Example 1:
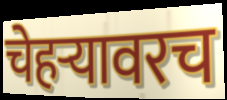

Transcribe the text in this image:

चेहर्‍यावरच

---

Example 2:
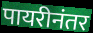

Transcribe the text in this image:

पायरीनंतर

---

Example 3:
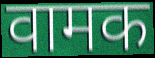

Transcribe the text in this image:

वामक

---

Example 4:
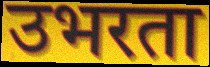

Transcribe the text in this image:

उभरता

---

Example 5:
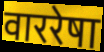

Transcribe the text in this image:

वाररेषा